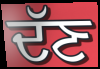
ਦੱਣ